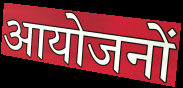
आयोजनों